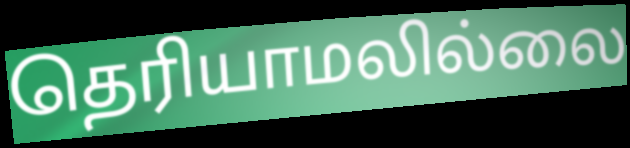
தெரியாமலில்லை